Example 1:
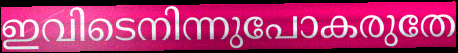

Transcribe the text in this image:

ഇവിടെനിന്നുപോകരുതേ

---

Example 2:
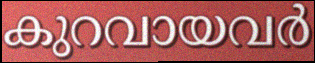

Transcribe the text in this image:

കുറവായവർ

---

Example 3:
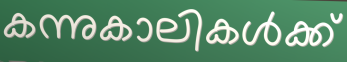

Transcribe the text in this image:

കന്നുകാലികൾക്ക്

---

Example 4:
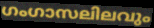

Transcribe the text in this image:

ഗംഗാസലിലവും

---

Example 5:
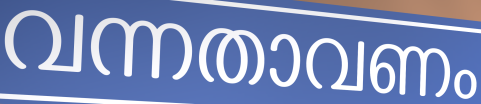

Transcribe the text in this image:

വന്നതാവണം